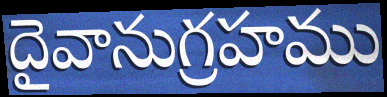
దైవానుగ్రహము